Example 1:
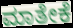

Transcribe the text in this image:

ಮಾತೇಕೆ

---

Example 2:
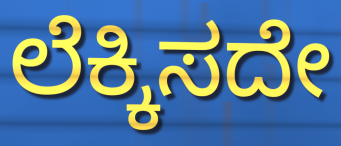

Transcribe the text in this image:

ಲೆಕ್ಕಿಸದೇ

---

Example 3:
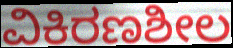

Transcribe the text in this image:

ವಿಕಿರಣಶೀಲ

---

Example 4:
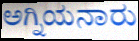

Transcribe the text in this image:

ಅಗ್ನಿಯನಾರು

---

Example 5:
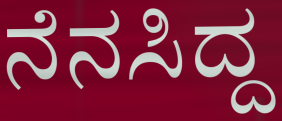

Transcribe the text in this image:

ನೆನಸಿದ್ದ